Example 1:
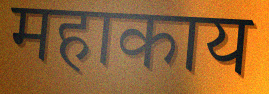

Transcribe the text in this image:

महाकाय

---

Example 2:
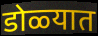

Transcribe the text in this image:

डोळ्यात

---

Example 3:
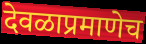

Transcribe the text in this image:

देवळाप्रमाणेच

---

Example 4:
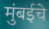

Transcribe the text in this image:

मुंबईचे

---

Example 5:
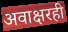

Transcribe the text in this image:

अवाक्षरही